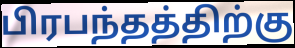
பிரபந்தத்திற்கு